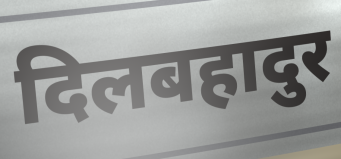
दिलबहादुर